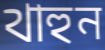
থাহুন